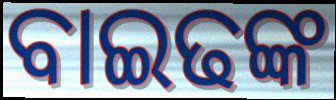
ବାଇଢଙ୍କ